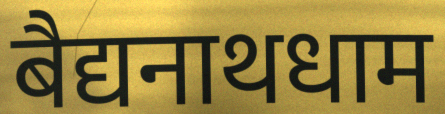
बैद्यनाथधाम